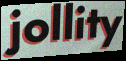
jollity